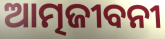
ଆତ୍ମଜୀବନୀ